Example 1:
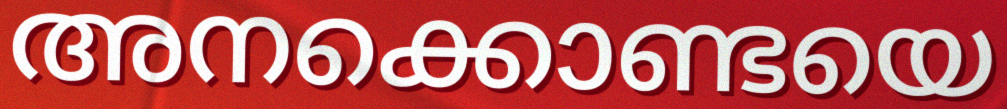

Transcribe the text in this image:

അനക്കൊണ്ടയെ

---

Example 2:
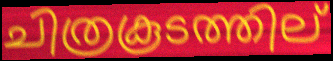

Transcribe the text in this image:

ചിത്രകൂടത്തില്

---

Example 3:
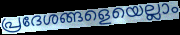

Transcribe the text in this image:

പ്രദേശങ്ങളെയെല്ലാം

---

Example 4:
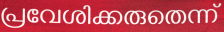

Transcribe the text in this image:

പ്രവേശിക്കരുതെന്ന്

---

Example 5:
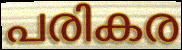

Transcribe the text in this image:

പരികര